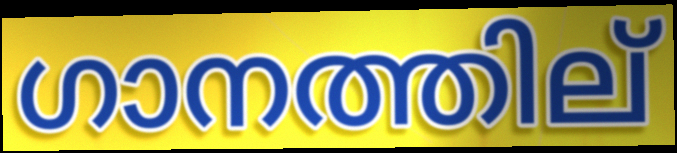
ഗാനത്തില്